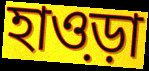
হাও়ড়া